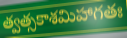
త్వత్సకాశమిహాగతః